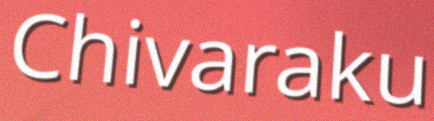
Chivaraku